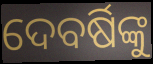
ଦେବର୍ଷିଙ୍କୁ